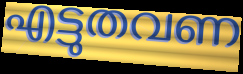
എട്ടുതവണ